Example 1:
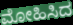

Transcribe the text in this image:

ಮೋಹಿಸಿದ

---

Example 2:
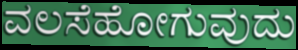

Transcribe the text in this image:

ವಲಸೆಹೋಗುವುದು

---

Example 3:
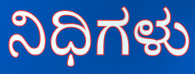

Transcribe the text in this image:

ನಿಧಿಗಳು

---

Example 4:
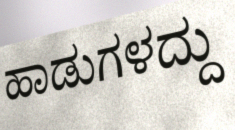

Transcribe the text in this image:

ಹಾಡುಗಳದ್ದು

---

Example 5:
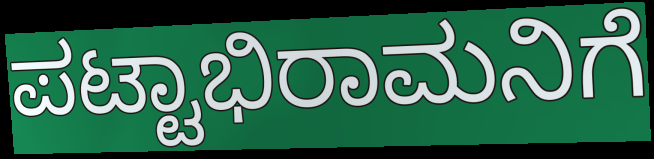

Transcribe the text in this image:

ಪಟ್ಟಾಭಿರಾಮನಿಗೆ